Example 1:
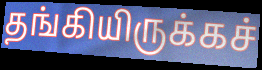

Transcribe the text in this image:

தங்கியிருக்கச்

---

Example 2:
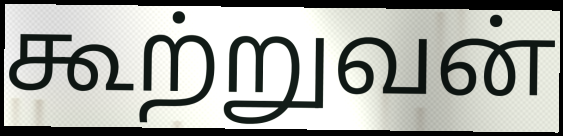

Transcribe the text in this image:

கூற்றுவன்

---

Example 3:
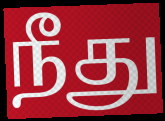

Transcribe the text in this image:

நீது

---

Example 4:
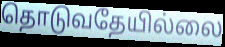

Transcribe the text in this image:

தொடுவதேயில்லை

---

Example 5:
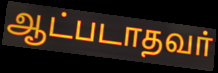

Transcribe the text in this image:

ஆட்படாதவர்